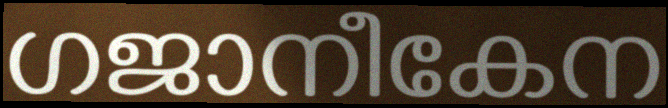
ഗജാനീകേന